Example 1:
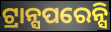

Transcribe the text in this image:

ଟ୍ରାନ୍ସପରେନ୍ସି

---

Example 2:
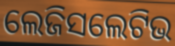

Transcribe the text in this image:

ଲେଜିସଲେଟିଭ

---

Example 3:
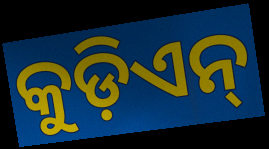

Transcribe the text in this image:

କୁଡ଼ିଏନ୍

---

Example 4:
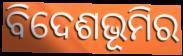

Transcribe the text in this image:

ବିଦେଶଭୂମିର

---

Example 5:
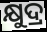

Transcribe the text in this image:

କ୍ଷୁଦ୍ର